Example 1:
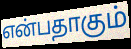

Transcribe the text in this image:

என்பதாகும்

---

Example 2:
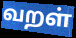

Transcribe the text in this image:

வறள்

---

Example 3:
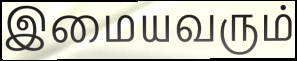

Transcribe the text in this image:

இமையவரும்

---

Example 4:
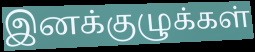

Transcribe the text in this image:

இனக்குழுக்கள்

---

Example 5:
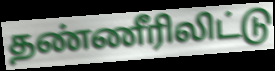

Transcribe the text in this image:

தண்ணீரிலிட்டு